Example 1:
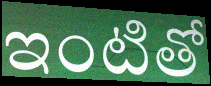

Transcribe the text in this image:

ఇంటితో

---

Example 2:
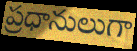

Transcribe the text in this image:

ప్రధానులుగా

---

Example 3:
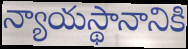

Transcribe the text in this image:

న్యాయస్థానానికి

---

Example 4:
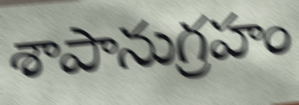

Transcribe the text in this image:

శాపానుగ్రహం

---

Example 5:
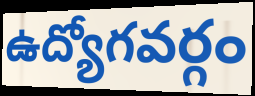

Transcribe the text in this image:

ఉద్యోగవర్గం